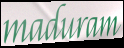
maduram